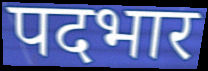
पदभार